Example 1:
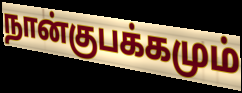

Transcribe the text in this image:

நான்குபக்கமும்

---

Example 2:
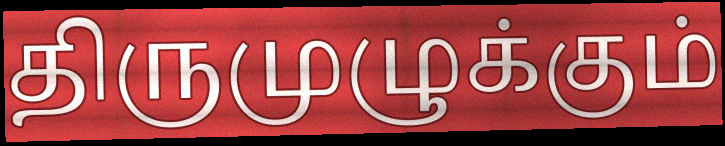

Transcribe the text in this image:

திருமுழுக்கும்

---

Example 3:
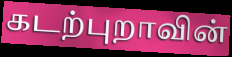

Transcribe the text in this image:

கடற்புறாவின்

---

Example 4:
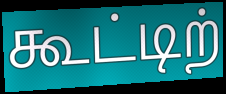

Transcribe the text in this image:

கூட்டிற்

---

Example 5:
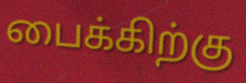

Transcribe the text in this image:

பைக்கிற்கு